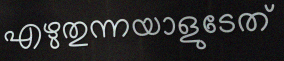
എഴുതുന്നയാളുടേത്